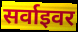
सर्वाइवर